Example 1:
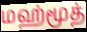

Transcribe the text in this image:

மஹ்மூத்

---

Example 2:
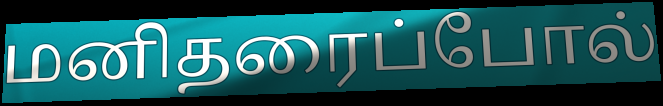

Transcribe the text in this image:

மனிதரைப்போல்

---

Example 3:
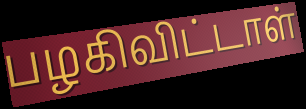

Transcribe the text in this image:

பழகிவிட்டாள்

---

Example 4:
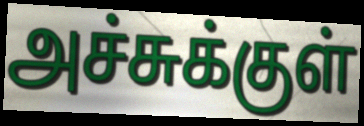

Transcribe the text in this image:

அச்சுக்குள்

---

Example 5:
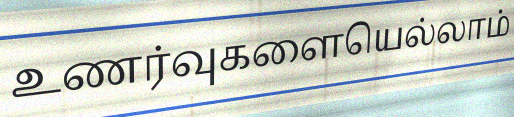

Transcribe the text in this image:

உணர்வுகளையெல்லாம்